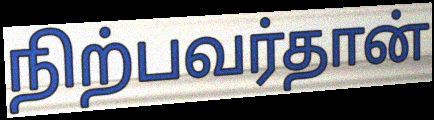
நிற்பவர்தான்